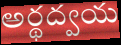
అర్థద్వయ